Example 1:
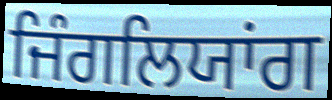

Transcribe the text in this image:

ਜਿੰਗਲਿਯਾਂਗ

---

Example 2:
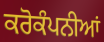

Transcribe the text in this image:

ਕਰੋਕੰਪਨੀਆਂ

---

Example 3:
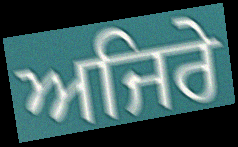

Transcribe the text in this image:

ਅਜਿਰੇ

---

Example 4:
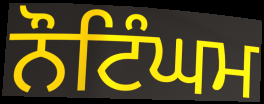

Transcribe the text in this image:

ਨੌਟਿੰਘਮ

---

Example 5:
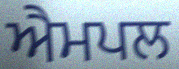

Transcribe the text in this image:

ਐਮਪਲ